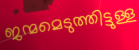
ജന്മമെടുത്തിട്ടുള്ള